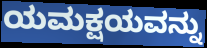
ಯಮಕ್ಷಯವನ್ನು